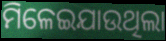
ମିଳେଇଯାଉଥିଲା